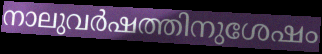
നാലുവർഷത്തിനുശേഷം